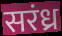
सरंध्र